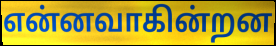
என்னவாகின்றன